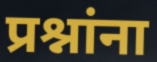
प्रश्नांना